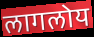
लागलोय